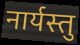
नार्यस्तु